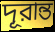
দূরান্ত